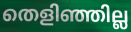
തെളിഞ്ഞില്ല